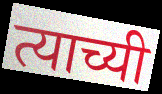
त्याच्यी